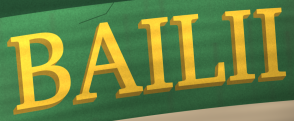
BAILII